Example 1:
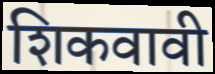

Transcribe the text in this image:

शिकवावी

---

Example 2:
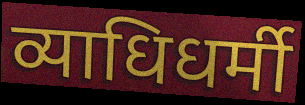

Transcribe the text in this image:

व्याधिधर्मी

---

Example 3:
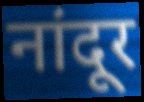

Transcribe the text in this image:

नांदूर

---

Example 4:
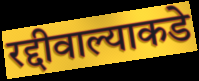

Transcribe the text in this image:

रद्दीवाल्याकडे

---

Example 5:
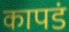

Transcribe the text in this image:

कापडं